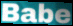
Babe